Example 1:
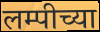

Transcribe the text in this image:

लम्पीच्या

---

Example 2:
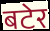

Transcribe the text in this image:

बटेर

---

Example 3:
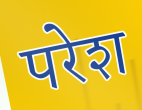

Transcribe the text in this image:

परेश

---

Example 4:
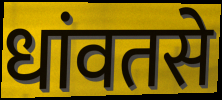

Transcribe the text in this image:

धांवतसे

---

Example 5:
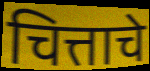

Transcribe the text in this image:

चित्ताचे